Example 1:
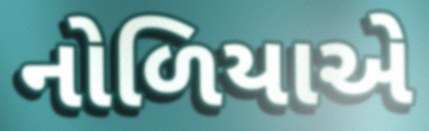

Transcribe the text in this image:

નોળિયાએ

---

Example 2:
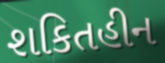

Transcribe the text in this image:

શકિતહીન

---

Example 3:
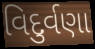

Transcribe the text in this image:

વિદુર્વણા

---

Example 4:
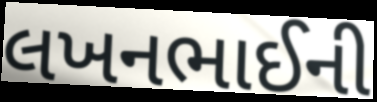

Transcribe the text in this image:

લખનભાઈની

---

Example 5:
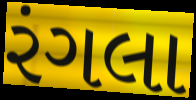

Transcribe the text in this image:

રંગલા